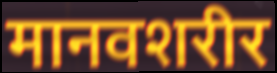
मानवशरीर